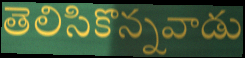
తెలిసికొన్నవాడు